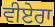
ਵੀਏਰਾ